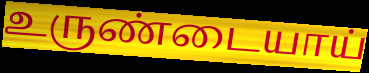
உருண்டையாய்